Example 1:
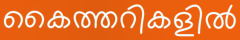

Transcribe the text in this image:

കൈത്തറികളിൽ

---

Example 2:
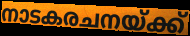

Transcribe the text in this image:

നാടകരചനയ്ക്ക്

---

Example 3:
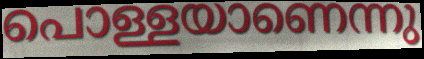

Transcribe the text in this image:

പൊള്ളയാണെന്നു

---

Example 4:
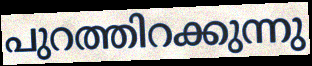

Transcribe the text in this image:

പുറത്തിറക്കുന്നു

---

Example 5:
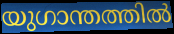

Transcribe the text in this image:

യുഗാന്തത്തിൽ